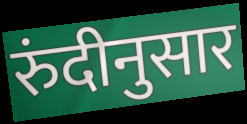
रुंदीनुसार